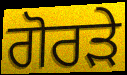
ਗੋਰੜੇ